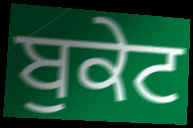
ਬੁਕੇਟ